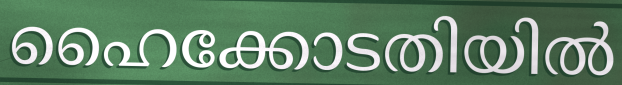
ഹൈക്കോടതിയിൽ